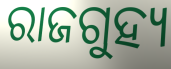
ରାଜଗୁହ୍ୟ